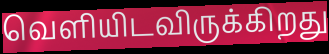
வெளியிடவிருக்கிறது